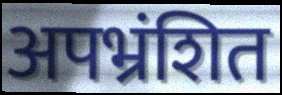
अपभ्रंशित